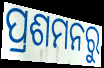
ପ୍ରଶମନରୁ